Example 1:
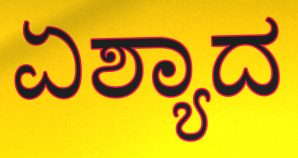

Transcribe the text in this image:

ಏಶ್ಯಾದ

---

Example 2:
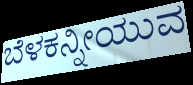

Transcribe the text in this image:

ಬೆಳಕನ್ನೀಯುವ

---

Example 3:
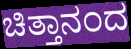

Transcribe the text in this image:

ಚಿತ್ತಾನಂದ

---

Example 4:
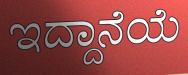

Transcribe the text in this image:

ಇದ್ದಾನೆಯೆ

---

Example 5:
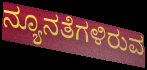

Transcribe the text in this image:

ನ್ಯೂನತೆಗಳಿರುವ